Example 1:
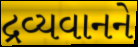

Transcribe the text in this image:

દ્રવ્યવાનને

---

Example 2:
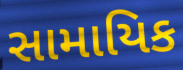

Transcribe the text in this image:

સામાયિક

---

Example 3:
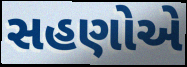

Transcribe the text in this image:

સહણોએ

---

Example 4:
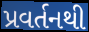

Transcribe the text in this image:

પ્રવર્તનથી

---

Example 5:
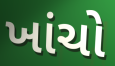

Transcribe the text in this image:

ખાંચો